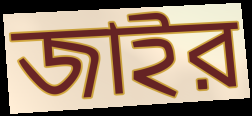
জাইর